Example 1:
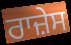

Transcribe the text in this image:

ਰਾਜ਼ੇਸ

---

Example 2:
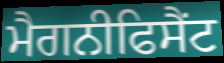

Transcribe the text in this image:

ਮੈਗਨੀਫਿਸੈਂਟ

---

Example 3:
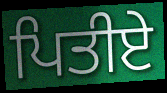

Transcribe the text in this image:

ਪਿਤੀਏ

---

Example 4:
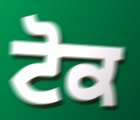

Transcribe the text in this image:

ਟੋਕ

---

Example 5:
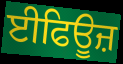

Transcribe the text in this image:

ਈਫਿਊਜ਼